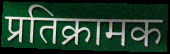
प्रतिक्रामक